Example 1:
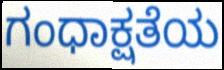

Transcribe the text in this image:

ಗಂಧಾಕ್ಷತೆಯ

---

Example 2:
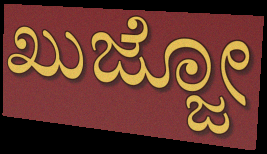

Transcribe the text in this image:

ಖುಜ್ಜೋ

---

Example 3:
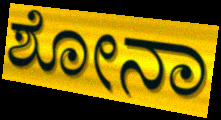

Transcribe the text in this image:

ಶೋನಾ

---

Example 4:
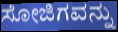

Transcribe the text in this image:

ಸೋಜಿಗವನ್ನು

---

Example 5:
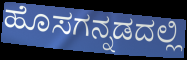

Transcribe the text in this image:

ಹೊಸಗನ್ನಡದಲ್ಲಿ